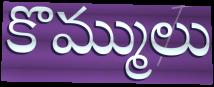
కొమ్ములు